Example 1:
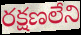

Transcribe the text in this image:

రక్షణలేని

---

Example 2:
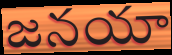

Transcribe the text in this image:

జనయా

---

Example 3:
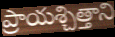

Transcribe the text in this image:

ప్రాయశ్చిత్తాని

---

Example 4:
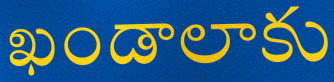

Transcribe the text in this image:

ఖండాలాకు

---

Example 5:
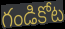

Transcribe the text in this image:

గండికోట